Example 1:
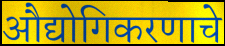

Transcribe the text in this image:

औद्योगिकरणाचे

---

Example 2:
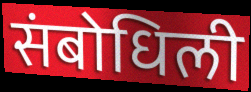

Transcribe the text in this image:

संबोधिली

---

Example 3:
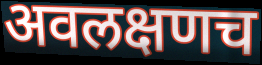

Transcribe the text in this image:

अवलक्षणच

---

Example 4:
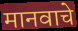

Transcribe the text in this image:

मानवाचे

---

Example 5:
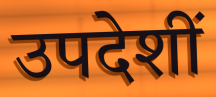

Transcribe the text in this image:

उपदेशीं